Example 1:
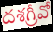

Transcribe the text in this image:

దశగ్రీవో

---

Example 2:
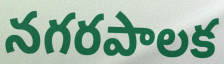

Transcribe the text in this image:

నగరపాలక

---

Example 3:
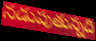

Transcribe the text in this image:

నడుపుతున్నది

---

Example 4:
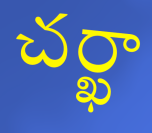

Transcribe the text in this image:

చర్ఖా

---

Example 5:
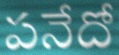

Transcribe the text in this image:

పనేదో